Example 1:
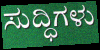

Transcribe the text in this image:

ಸುದ್ಧಿಗಳು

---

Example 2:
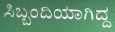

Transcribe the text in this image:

ಸಿಬ್ಬಂದಿಯಾಗಿದ್ದ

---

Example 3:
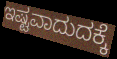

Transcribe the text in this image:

ಇಷ್ಟವಾದುದಕ್ಕೆ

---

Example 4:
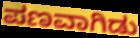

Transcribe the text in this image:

ಪಣವಾಗಿಡು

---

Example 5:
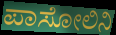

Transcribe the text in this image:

ಪಾಸೋಲಿನಿ